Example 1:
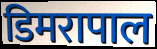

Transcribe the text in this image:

डिमरापाल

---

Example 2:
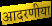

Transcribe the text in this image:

आदरणीया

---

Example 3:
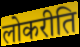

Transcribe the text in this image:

लोकरीति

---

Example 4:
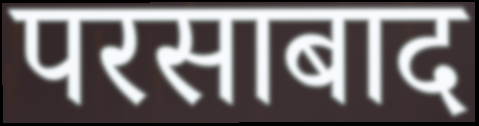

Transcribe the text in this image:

परसाबाद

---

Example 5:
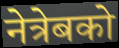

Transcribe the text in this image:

नेत्रेबको